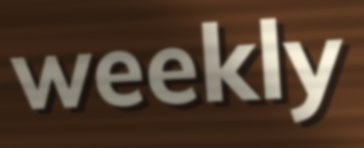
weekly